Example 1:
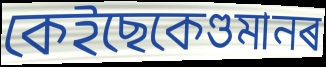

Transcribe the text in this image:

কেইছেকেণ্ডমানৰ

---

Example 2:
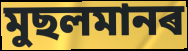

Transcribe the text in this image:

মুছলমানৰ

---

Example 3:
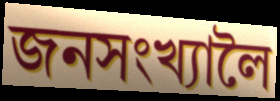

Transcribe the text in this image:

জনসংখ্যালৈ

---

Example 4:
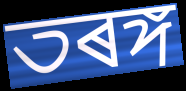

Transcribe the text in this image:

তৰঙ্গ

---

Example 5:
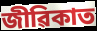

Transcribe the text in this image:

জীৱিকাত